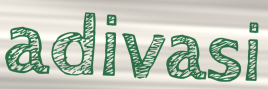
adivasi